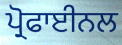
ਪ੍ਰੋਫਾਈਨਲ